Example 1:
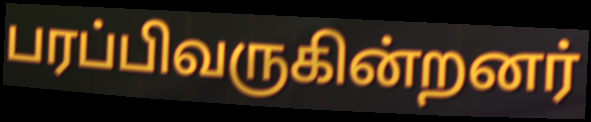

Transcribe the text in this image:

பரப்பிவருகின்றனர்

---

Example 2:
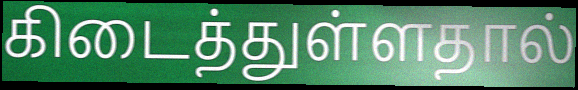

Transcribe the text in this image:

கிடைத்துள்ளதால்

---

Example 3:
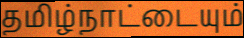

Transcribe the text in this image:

தமிழ்நாட்டையும்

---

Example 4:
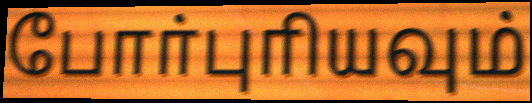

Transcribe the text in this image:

போர்புரியவும்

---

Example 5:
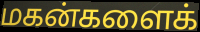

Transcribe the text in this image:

மகன்களைக்